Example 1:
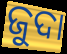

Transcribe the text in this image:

ଜୁଦା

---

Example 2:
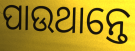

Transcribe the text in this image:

ପାଉଥାନ୍ତେ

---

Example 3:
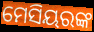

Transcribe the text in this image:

ମେସିୟରଙ୍କ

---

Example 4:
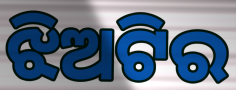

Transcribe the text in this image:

ଝିଅଟିର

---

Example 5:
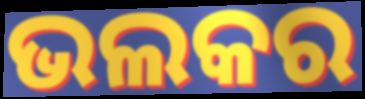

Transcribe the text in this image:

ଭଲକର